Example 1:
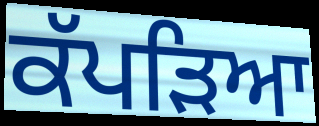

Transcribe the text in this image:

ਕੱਪੜਿਆ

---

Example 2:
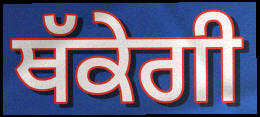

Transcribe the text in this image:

ਥੱਕੇਗੀ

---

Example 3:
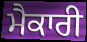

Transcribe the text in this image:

ਮੈਕਾਰੀ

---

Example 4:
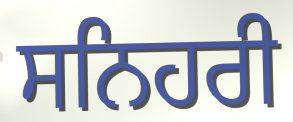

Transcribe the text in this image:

ਸਨਿਹਰੀ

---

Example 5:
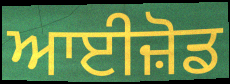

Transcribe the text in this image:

ਆਈਜ਼ੋਡ